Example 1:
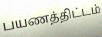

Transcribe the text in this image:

பயணத்திட்டம்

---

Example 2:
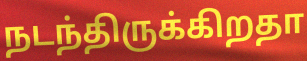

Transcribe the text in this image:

நடந்திருக்கிறதா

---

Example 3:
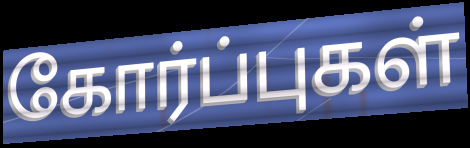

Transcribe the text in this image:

கோர்ப்புகள்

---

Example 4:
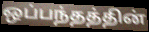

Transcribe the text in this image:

ஒப்பந்தத்தின்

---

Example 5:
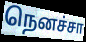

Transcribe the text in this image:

நெனச்சா